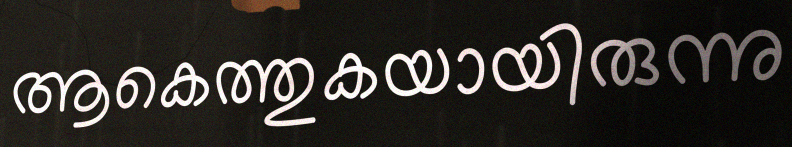
ആകെത്തുകയായിരുന്നു